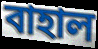
বাহাল